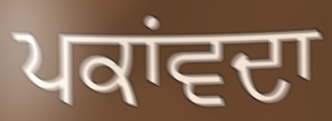
ਪਕਾਂਵਦਾ